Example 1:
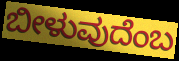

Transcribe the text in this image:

ಬೀಳುವುದೆಂಬ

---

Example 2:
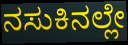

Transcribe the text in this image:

ನಸುಕಿನಲ್ಲೇ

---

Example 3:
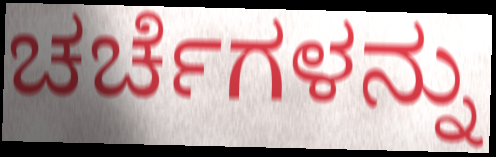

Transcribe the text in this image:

ಚರ್ಚೆಗಳನ್ನು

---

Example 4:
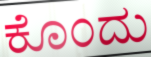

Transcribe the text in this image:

ಕೊಂದು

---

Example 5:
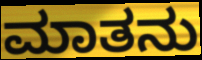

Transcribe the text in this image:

ಮಾತನು